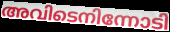
അവിടെനിന്നോടി